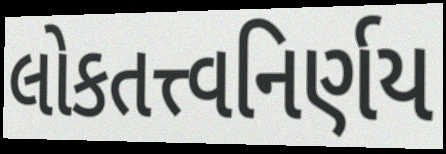
લોકતત્ત્વનિર્ણય